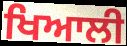
ਖਿਆਲੀ